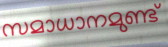
സമാധാനമുണ്ട്